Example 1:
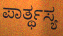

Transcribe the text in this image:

ಪಾರ್ತ್ಥಸ್ಯ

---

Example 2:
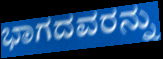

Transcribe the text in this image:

ಭಾಗದವರನ್ನು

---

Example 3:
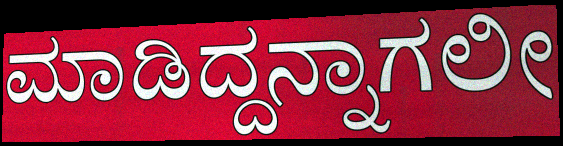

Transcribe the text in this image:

ಮಾಡಿದ್ದನ್ನಾಗಲೀ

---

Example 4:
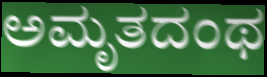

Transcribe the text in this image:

ಅಮೃತದಂಥ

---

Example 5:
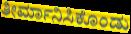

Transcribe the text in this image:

ತೀರ್ಮಾನಿಸಿಕೊಂಡು